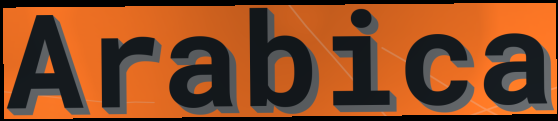
Arabica